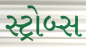
સ્ટ્રોબ્સ